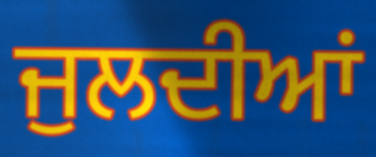
ਜੁਲਦੀਆਂ